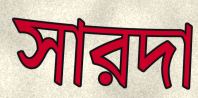
সারদা